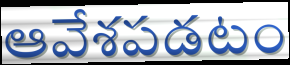
ఆవేశపడటం